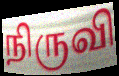
நிருவி